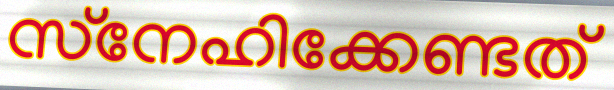
സ്‌നേഹിക്കേണ്ടത്